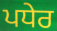
ਪਧੇਰ